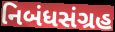
નિબંધસંગ્રહ